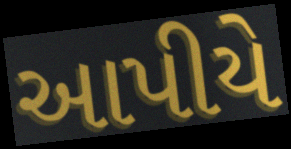
આપીયે